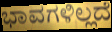
ಭಾವಗಳಿಲ್ಲದೆ